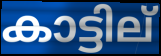
കാട്ടില്